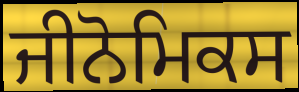
ਜੀਨੋਮਿਕਸ